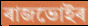
ৰাজভোইৰ